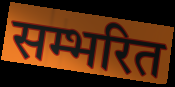
सम्भरित